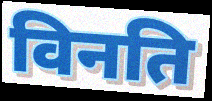
विनति